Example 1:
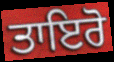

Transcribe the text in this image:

ਤਾਇਰੋ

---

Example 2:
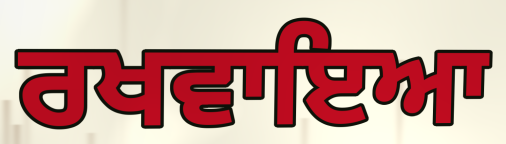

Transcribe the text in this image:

ਰਖਵਾਇਆ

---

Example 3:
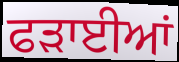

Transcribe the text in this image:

ਫੜਾਈਆਂ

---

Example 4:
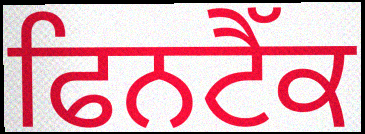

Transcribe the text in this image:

ਫਿਨਟੈੱਕ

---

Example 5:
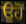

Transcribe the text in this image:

ਉਹੋਂ